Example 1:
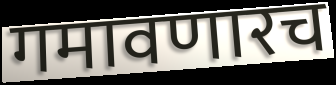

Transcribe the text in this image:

गमावणारच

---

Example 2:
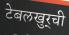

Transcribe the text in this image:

टेबलखुर्ची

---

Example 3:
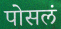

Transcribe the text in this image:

पोसलं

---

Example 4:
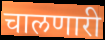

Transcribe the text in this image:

चालणारी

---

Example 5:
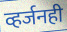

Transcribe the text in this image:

व्हर्जनही